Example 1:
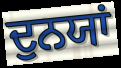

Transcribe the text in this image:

ਦੁਨਯਾਂ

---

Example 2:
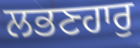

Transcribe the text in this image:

ਲਭਣਹਾਰੁ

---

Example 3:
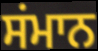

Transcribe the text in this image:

ਸਂਮਾਨ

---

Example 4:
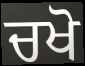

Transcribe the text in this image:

ਚਖੋ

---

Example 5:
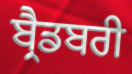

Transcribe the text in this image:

ਬ੍ਰੈਡਬਰੀ